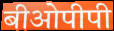
बीओपीपी